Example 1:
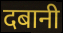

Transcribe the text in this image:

दबानी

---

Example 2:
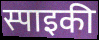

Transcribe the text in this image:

स्पाइकी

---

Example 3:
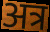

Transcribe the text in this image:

अत्र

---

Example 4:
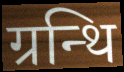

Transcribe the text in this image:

ग्रन्थि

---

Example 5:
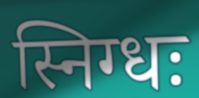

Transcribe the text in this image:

स्निग्धः